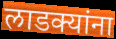
लाडक्यांना